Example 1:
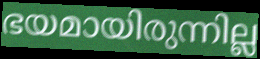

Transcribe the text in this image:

ഭയമായിരുന്നില്ല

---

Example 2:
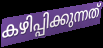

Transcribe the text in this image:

കഴിപ്പിക്കുന്നത്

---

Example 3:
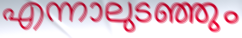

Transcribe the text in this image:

എന്നാലുടഞ്ഞും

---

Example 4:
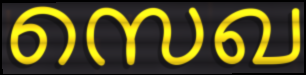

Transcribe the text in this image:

സെഖ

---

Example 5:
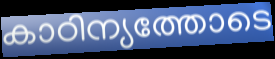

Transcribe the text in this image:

കാഠിന്യത്തോടെ